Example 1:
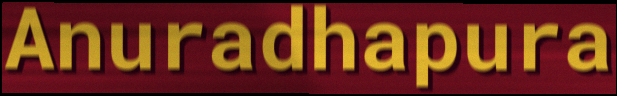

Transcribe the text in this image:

Anuradhapura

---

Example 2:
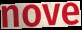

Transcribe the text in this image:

nove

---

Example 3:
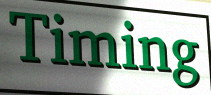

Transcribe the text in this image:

Timing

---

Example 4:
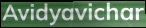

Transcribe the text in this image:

Avidyavichar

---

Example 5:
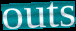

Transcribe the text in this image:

outs